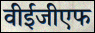
वीईजीएफ